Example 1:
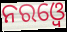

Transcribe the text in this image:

ନରଓ୍ୱେ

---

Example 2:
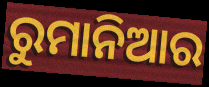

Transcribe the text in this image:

ରୁମାନିଆର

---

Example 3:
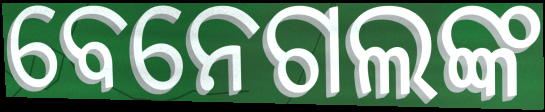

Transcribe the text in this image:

ବେନେଗଲଙ୍କ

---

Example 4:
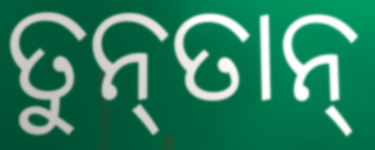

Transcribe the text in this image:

ତୁନ୍‍ତାନ୍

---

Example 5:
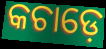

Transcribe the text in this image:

କଚାଡ଼େ